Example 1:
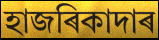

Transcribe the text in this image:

হাজৰিকাদাৰ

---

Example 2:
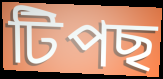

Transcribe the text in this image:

টিপছ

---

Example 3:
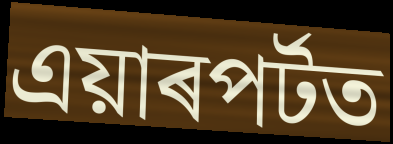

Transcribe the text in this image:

এয়াৰপৰ্টত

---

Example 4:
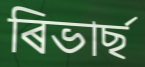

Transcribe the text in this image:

ৰিভাৰ্ছ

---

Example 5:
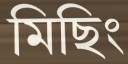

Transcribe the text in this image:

মিছিং